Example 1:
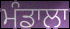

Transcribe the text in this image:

ਮੰਡਾਲਾ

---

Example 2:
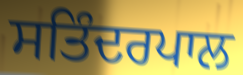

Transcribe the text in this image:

ਸਤਿੰਦਰਪਾਲ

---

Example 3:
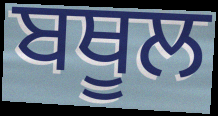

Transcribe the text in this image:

ਬਥੂਲ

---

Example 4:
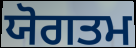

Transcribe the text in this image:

ਯੋਗਤਮ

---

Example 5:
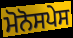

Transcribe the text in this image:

ਮੋਨੋਸਪੇਸ